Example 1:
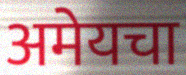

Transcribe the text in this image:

अमेयचा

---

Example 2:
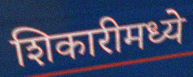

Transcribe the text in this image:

शिकारीमध्ये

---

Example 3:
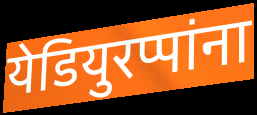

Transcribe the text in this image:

येडियुरप्पांना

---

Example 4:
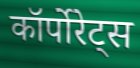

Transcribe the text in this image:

कॉर्पोरेट्स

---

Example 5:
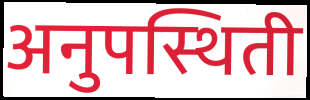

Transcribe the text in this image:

अनुपस्थिती